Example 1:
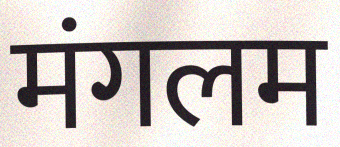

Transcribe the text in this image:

मंगलम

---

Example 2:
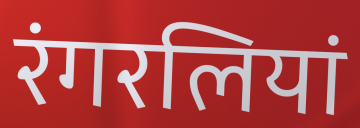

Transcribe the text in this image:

रंगरलियां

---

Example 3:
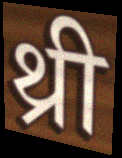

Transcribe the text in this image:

थ्री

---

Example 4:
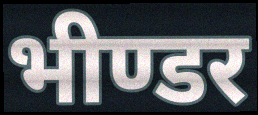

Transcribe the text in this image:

भीण्डर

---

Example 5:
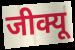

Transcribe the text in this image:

जीक्यू